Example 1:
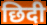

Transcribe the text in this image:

छिदी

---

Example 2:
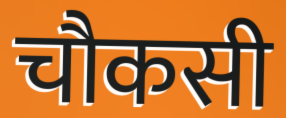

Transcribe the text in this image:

चौकसी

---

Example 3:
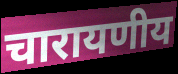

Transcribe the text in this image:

चारायणीय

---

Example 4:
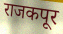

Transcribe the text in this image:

राजकपूर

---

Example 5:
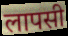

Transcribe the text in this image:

लापसी